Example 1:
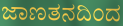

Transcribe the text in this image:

ಜಾಣತನದಿಂದ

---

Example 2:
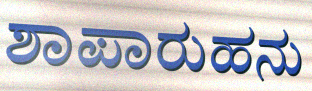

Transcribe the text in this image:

ಶಾಪಾರುಹನು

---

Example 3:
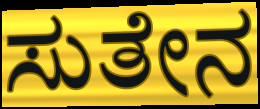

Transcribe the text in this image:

ಸುತೇನ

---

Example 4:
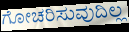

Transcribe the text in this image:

ಗೋಚರಿಸುವುದಿಲ್ಲ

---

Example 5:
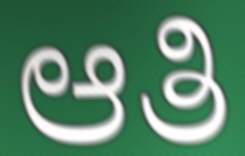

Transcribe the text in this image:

ಆತಿ